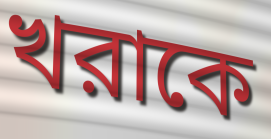
খরাকে